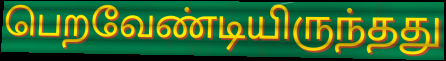
பெறவேண்டியிருந்தது